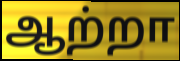
ஆற்றா